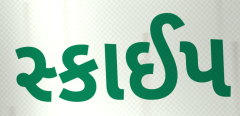
સ્કાઈપ